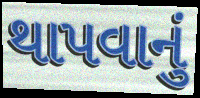
થાપવાનું